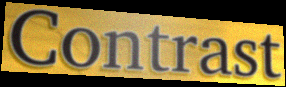
Contrast